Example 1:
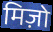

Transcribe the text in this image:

मिज़ो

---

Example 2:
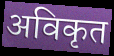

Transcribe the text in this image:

अविकृत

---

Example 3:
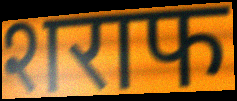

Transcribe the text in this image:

शराफ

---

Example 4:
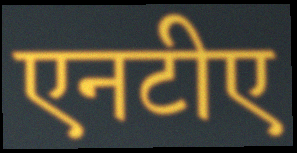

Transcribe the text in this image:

एनटीए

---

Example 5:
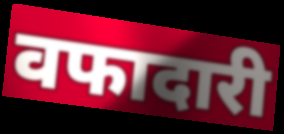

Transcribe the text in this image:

वफादारी